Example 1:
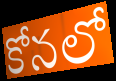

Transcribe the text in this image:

కోనలో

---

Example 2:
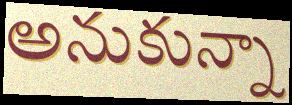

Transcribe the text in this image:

అనుకున్నా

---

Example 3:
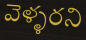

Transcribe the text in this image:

వెళ్ళరని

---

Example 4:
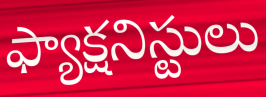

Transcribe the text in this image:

ఫ్యాక్షనిస్టులు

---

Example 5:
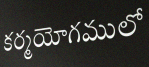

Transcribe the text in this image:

కర్మయోగములో